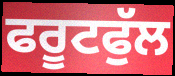
ਫਰੂਟਫੁੱਲ